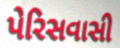
પેરિસવાસી